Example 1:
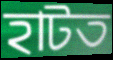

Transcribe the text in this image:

হাটত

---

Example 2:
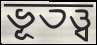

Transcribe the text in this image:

ভূতত্ত্ব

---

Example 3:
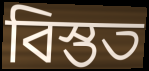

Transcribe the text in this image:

বিস্তত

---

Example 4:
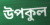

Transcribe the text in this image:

উপকুল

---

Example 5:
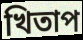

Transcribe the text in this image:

খিতাপ